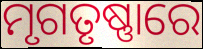
ମୃଗତୃଷ୍ଣାରେ